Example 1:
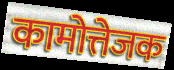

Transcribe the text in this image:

कामोत्तेजक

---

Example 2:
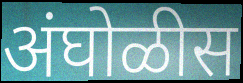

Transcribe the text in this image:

अंघोळीस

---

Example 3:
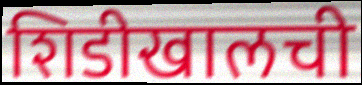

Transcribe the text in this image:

शिडीखालची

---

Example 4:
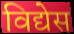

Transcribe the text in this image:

विद्येस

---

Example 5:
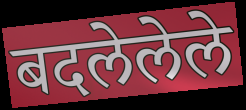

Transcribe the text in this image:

बदलेलेले